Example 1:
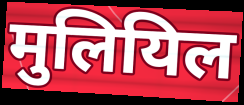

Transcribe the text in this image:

मुलियिल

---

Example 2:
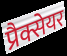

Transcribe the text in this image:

प्रैक्सेयर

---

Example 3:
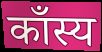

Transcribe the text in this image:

काँस्य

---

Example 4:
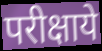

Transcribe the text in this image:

परीक्षाये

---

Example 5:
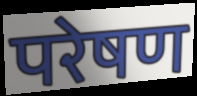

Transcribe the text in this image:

परेषण